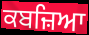
ਕਬਜ਼ਿਆ